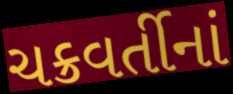
ચક્રવર્તીનાં